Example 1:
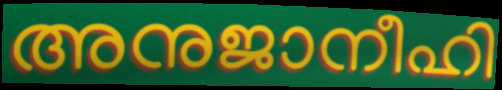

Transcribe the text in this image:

അനുജാനീഹി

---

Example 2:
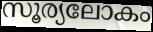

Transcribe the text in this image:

സൂര്യലോകം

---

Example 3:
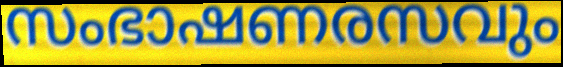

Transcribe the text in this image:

സംഭാഷണരസവും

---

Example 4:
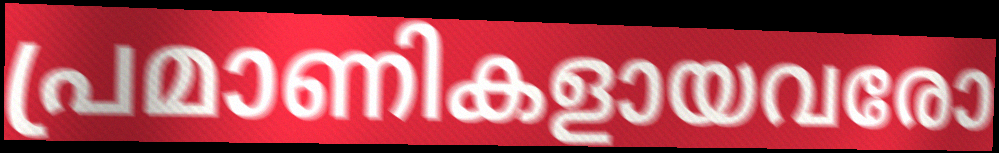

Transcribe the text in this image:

പ്രമാണികളായവരോ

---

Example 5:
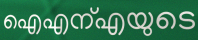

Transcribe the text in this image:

ഐഎന്എയുടെ